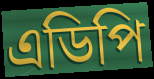
এডিপি